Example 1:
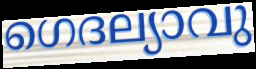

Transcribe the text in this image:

ഗെദല്യാവു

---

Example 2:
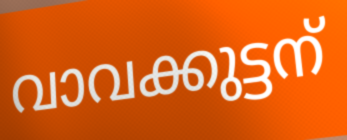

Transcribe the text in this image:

വാവക്കുട്ടന്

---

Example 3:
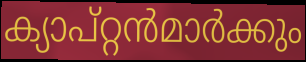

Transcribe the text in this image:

ക്യാപ്റ്റൻമാർക്കും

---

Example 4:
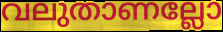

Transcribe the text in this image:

വലുതാണല്ലോ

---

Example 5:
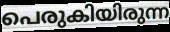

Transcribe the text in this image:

പെരുകിയിരുന്ന